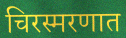
चिरस्मरणात